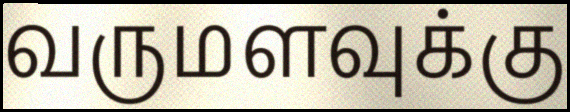
வருமளவுக்கு